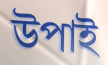
উপাই